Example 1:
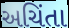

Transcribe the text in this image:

અચિંતા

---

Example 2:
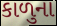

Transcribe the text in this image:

કાળુના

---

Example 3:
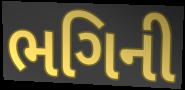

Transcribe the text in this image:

ભગિની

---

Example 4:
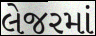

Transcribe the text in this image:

લેજરમાં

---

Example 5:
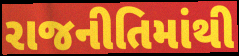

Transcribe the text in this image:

રાજનીતિમાંથી